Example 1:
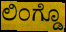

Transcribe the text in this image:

ಲಿಂಗ್ಡೊ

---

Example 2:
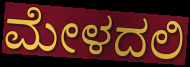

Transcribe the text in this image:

ಮೇಳದಲಿ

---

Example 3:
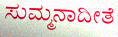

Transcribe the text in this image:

ಸುಮ್ಮನಾದೀತೆ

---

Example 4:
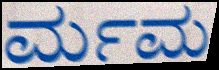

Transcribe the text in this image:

ರ್ಮಮ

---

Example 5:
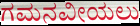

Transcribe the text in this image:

ಗಮನವೀಯಲು